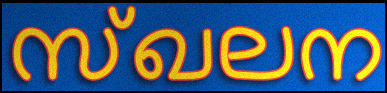
സ്ഖലന